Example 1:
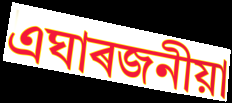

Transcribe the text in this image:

এঘাৰজনীয়া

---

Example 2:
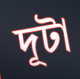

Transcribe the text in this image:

দূটা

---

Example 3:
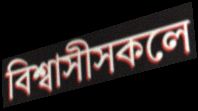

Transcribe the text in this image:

বিশ্বাসীসকলে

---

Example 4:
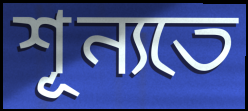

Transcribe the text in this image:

শূন্যতে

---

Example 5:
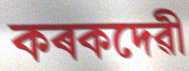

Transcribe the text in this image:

কৰকদেৱী